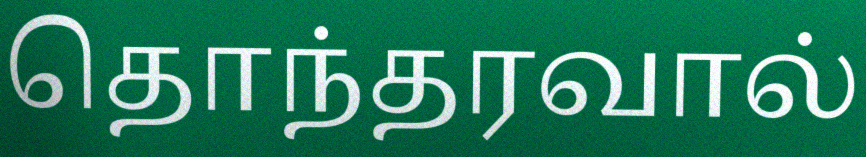
தொந்தரவால்